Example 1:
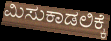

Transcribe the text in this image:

ಮಿಸುಕಾಡಲಿಕ್ಕೆ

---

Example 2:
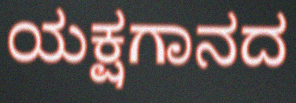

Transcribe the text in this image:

ಯಕ್ಷಗಾನದ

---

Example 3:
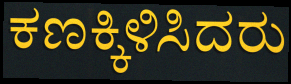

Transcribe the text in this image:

ಕಣಕ್ಕಿಳಿಸಿದರು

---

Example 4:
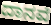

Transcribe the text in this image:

ದಾನವೆ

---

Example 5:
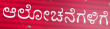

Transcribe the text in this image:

ಆಲೋಚನೆಗಳಿಗೆ